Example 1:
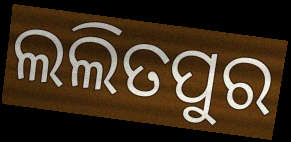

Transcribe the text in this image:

ଲଲିତପୁର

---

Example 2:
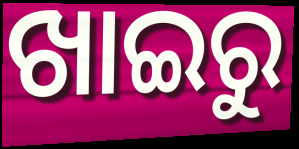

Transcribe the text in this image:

ଖାଇରୁ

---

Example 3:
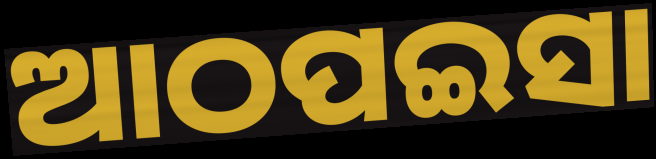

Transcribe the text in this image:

ଆଠପଇସା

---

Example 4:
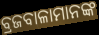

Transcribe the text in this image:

ବ୍ରଜବାଳାମାନଙ୍କ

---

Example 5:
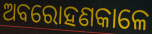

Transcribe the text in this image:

ଅବରୋହଣକାଳେ